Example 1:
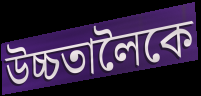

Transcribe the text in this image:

উচ্চতালৈকে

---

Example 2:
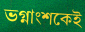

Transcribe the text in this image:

ভগ্নাংশকেই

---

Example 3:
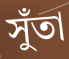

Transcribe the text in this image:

সুঁতা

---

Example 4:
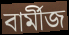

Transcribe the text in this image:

বাৰ্মীজ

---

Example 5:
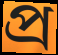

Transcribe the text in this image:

প্ৰ